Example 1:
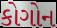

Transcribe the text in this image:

કોગોન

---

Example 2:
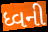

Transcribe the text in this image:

ધ્વની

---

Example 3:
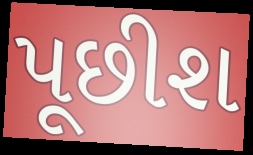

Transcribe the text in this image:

પૂછીશ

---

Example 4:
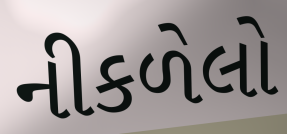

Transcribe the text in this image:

નીકળેલો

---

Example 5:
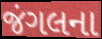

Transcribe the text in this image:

જંગલના